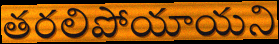
తరలిపోయాయని